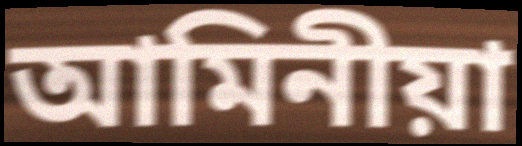
আমিনীয়া